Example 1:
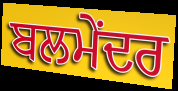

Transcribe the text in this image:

ਬਲਮੇਂਦਰ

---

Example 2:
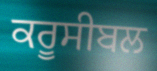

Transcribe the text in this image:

ਕਰੂਸੀਬਲ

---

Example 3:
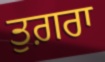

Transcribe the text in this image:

ਤੁਗ਼ਰਾ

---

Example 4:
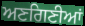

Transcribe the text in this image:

ਅਣਗਿਣੀਆਂ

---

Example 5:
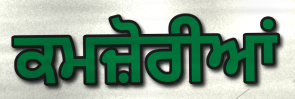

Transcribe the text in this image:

ਕਮਜ਼ੋਰੀਆਂ